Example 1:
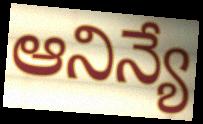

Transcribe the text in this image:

ఆనిన్యే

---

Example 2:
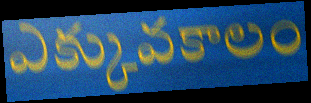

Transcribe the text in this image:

ఎక్కువకాలం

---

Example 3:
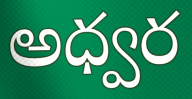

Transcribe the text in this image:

అధ్వర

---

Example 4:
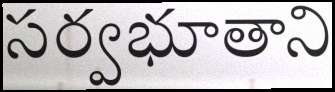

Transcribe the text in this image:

సర్వభూతాని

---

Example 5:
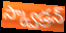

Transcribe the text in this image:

స్క్వాడ్రన్